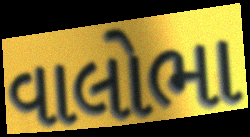
વાલોભા